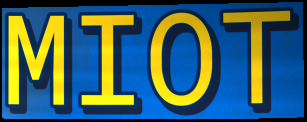
MIOT